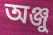
অঞ্জু